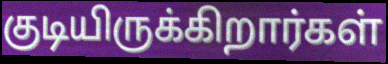
குடியிருக்கிறார்கள்